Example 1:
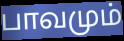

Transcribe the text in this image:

பாவமும்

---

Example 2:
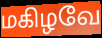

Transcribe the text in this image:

மகிழவே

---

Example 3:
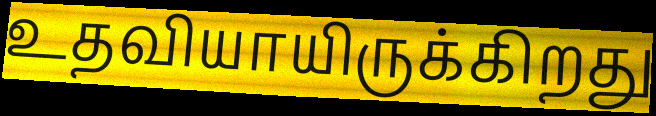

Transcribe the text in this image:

உதவியாயிருக்கிறது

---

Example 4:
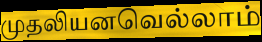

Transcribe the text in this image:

முதலியனவெல்லாம்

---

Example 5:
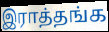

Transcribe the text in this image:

இராத்தங்க